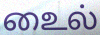
உைல்